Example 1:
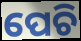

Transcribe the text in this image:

ପେଚି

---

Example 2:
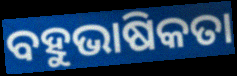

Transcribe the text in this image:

ବହୁଭାଷିକତା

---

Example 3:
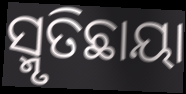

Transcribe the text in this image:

ସ୍ମୃତିଛାୟା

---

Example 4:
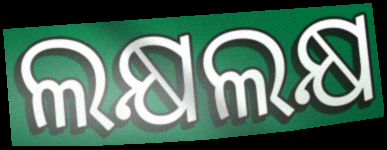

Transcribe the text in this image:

ଲକ୍ଷଲକ୍ଷ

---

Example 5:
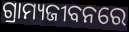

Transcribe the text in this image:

ଗ୍ରାମ୍ୟଜୀବନରେ